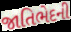
જાતિભેદની